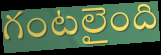
గంటలైంది